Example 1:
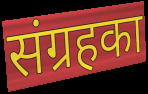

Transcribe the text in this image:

संग्रहका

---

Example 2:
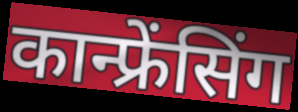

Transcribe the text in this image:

कान्फ्रेंसिंग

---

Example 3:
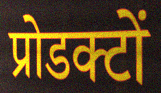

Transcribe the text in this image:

प्रोडक्टों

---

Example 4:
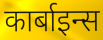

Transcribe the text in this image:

कार्बाइन्स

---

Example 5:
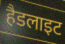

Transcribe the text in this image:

हैडलाइट